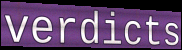
verdicts